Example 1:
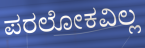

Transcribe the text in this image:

ಪರಲೋಕವಿಲ್ಲ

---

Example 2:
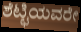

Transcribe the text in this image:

ಶೆಟ್ಟಿಯವರೇ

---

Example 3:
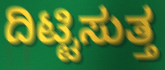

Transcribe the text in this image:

ದಿಟ್ಟಿಸುತ್ತ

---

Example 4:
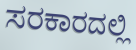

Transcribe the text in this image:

ಸರಕಾರದಲ್ಲಿ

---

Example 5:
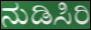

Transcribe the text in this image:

ನುಡಿಸಿರಿ